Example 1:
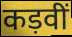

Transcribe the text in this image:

कड़वीं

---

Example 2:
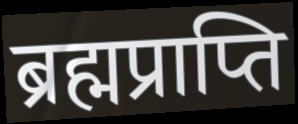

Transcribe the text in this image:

ब्रह्मप्राप्ति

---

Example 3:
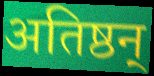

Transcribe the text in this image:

अतिष्ठन्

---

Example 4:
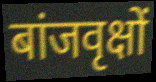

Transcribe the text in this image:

बांजवृक्षों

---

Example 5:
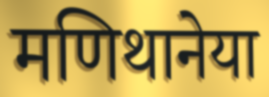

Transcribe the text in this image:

मणिथानेया